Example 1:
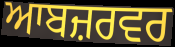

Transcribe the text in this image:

ਆਬਜ਼ਰਵਰ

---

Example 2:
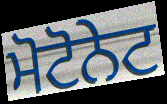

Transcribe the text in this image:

ਮੋਟੋਨੇਟ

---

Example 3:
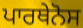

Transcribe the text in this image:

ਪਾਰਥੇਨੋਸ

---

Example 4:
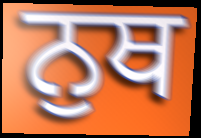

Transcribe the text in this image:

ਨੁਥ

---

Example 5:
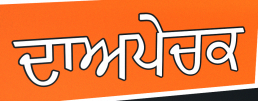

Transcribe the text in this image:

ਦਾਅਪੇਚਕ